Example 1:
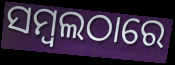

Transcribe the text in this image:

ସମ୍ବଲଠାରେ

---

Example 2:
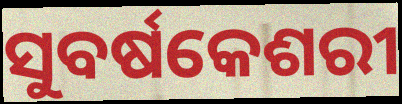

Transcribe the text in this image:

ସୁବର୍ଷକେଶରୀ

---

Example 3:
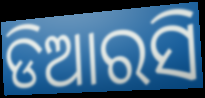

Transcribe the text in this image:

ଡିଆରସି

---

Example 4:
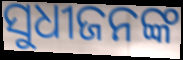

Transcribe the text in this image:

ସୁଧୀଜନଙ୍କ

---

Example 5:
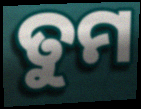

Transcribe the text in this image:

ତୁମ